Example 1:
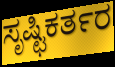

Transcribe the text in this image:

ಸೃಷ್ಟಿಕರ್ತರ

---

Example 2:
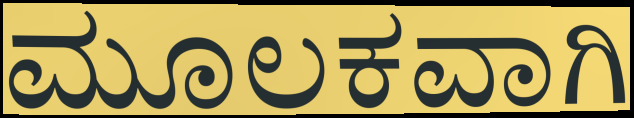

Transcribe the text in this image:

ಮೂಲಕವಾಗಿ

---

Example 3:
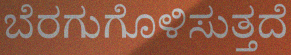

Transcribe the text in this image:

ಬೆರಗುಗೊಳಿಸುತ್ತದೆ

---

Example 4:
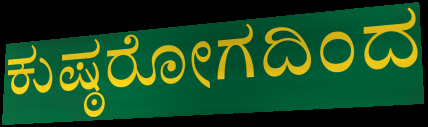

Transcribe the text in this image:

ಕುಷ್ಠರೋಗದಿಂದ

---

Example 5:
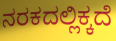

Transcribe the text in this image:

ನರಕದಲ್ಲಿಕ್ಕದೆ